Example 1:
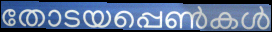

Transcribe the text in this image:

തോടയപ്പെൺകൾ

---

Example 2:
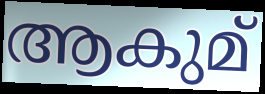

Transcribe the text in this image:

ആകുമ്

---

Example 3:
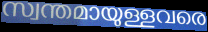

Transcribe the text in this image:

സ്വന്തമായുള്ളവരെ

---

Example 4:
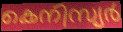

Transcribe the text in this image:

കെനിസ്യർ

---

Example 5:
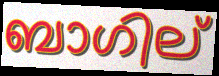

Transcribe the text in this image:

ബാഗില്